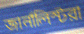
জার্নালিস্টরা